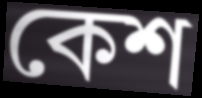
কেশ